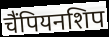
चैंपियनशिप